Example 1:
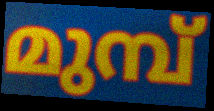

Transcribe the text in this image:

മുമ്പ്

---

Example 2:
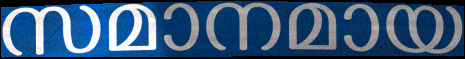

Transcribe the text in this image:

സമാനമായ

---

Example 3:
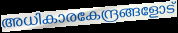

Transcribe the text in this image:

അധികാരകേന്ദ്രങ്ങളോട്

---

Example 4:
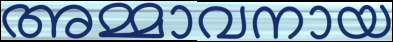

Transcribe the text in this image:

അമ്മാവനായ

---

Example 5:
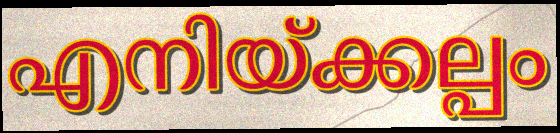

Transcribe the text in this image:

എനിയ്ക്കല്പം